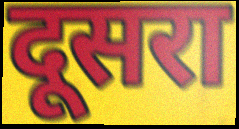
दूसरा